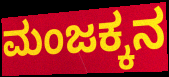
ಮಂಜಕ್ಕನ